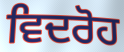
ਵਿਦਰੋਹ